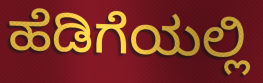
ಹೆಡಿಗೆಯಲ್ಲಿ